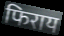
फिराय